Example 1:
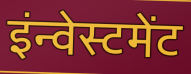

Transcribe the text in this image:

इंन्वेस्टमेंट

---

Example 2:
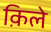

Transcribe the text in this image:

क़िले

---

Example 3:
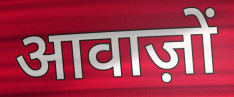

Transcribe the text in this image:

आवाज़ों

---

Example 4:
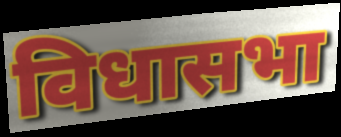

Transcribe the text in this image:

विधासभा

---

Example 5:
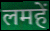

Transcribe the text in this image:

लमहें